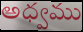
అధ్వము